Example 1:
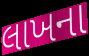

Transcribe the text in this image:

લાખના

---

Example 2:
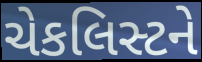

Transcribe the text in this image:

ચેકલિસ્ટને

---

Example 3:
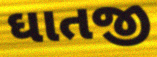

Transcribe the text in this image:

ઘાતજી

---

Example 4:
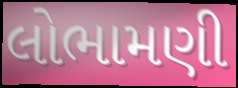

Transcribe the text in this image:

લોભામણી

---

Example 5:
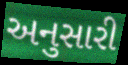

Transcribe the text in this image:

અનુસારી